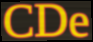
CDe